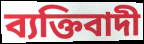
ব্যক্তিবাদী